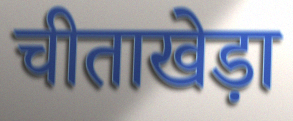
चीताखेड़ा